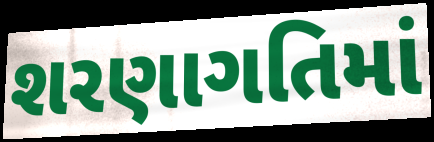
શરણાગતિમાં